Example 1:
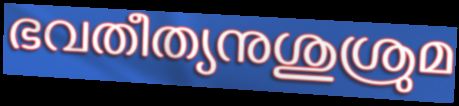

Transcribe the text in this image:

ഭവതീത്യനുശുശ്രുമ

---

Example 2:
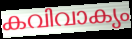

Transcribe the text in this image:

കവിവാക്യം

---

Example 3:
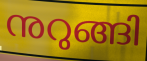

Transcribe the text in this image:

നുറുങ്ങി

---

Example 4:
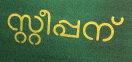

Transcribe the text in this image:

സ്റ്റീപ്പന്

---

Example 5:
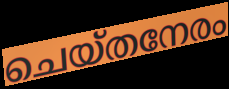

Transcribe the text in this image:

ചെയ്തനേരം